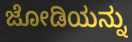
ಜೋಡಿಯನ್ನು